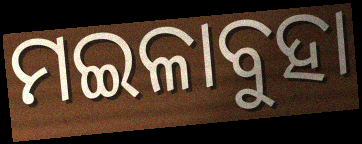
ମଇଳାବୁହା